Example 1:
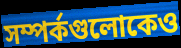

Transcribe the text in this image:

সম্পর্কগুলোকেও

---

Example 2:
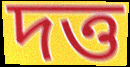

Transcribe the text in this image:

দত্ত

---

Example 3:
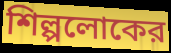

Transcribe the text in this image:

শিল্পলোকের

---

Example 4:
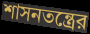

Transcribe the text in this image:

শাসনতন্ত্রের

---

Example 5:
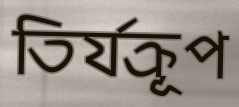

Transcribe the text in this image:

তির্যক্রূপ